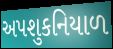
અપશુકનિયાળ